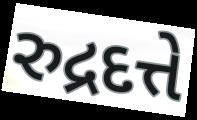
રુદ્રદત્તે